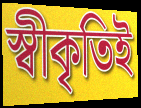
স্বীকৃতিই